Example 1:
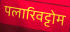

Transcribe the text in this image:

पलारिवट्टोम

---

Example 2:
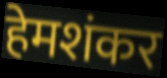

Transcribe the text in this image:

हेमशंकर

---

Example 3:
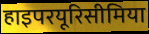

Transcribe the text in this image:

हाइपरयूरिसीमिया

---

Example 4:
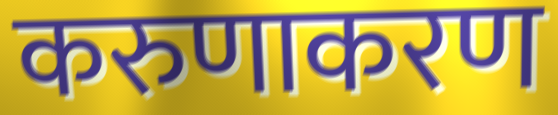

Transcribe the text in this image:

करुणाकरण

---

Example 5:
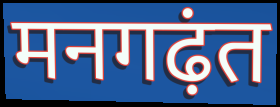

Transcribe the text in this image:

मनगढ़ंत